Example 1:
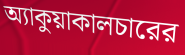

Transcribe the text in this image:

অ্যাকুয়াকালচারের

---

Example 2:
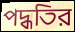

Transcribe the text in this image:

পদ্ধতির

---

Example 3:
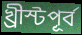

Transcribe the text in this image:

খ্রীস্টপূর্ব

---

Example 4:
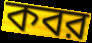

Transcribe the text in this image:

কবর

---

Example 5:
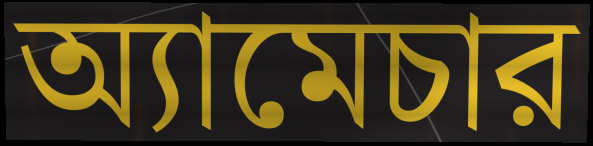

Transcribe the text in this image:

অ্যামেচার